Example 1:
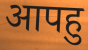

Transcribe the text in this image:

आपहु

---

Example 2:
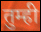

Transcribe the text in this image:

तुम्ही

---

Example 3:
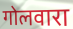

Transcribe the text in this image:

गोलवारा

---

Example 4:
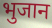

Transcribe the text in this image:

भुजान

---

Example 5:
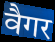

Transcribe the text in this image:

वैगर